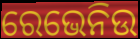
ରେଭେନିଉ